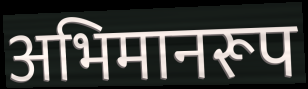
अभिमानरूप